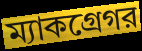
ম্যাকগ্রেগর